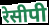
रेसीपी